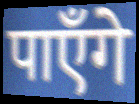
पाएँगे